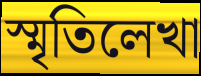
স্মৃতিলেখা